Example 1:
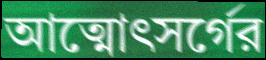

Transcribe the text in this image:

আত্মোৎসর্গের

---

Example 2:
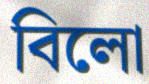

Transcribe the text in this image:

বিলো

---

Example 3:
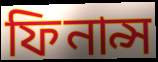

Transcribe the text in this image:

ফিনান্স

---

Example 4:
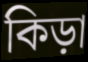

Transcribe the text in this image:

কিড়া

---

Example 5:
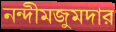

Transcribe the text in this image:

নন্দীমজুমদার